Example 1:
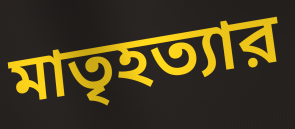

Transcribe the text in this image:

মাতৃহত্যার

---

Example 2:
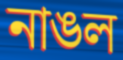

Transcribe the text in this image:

নাঙল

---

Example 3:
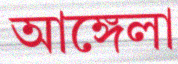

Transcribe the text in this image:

আঙ্গেলা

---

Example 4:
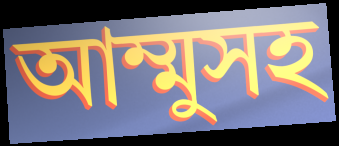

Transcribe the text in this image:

আম্মুসহ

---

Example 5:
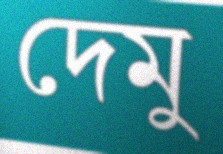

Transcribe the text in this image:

দেমু